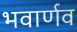
भवार्णव